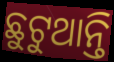
ଛୁଟୁଥାନ୍ତି